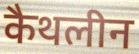
कैथलीन